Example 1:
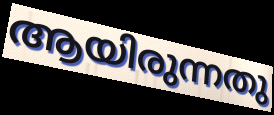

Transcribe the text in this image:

ആയിരുന്നതു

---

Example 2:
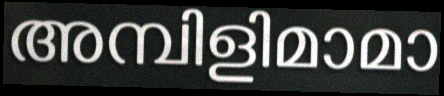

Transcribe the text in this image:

അമ്പിളിമാമാ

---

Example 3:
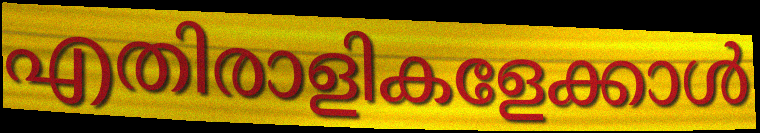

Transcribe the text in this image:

എതിരാളികളേക്കാൾ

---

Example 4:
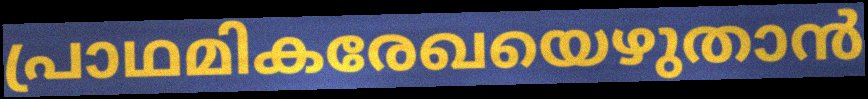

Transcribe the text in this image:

പ്രാഥമികരേഖയെഴുതാൻ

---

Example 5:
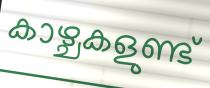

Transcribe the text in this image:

കാഴ്ചകളുണ്ട്